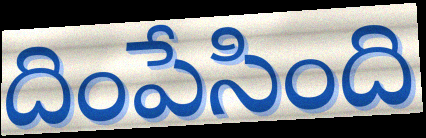
దింపేసింది